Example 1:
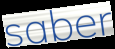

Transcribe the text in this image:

saber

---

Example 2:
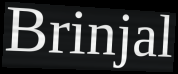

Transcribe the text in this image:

Brinjal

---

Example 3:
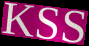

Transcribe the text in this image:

KSS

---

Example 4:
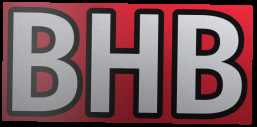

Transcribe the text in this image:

BHB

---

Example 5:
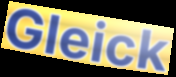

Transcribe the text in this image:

Gleick